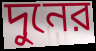
দুনের